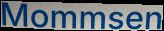
Mommsen